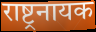
राष्ट्रनायक